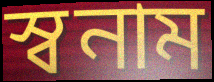
স্বনাম